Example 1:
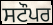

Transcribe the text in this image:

ਸਟੌਪਰ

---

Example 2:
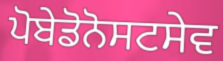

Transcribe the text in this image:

ਪੋਬੇਡੋਨੋਸਟਸੇਵ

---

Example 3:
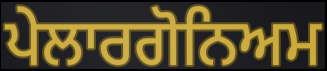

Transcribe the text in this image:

ਪੇਲਾਰਗੋਨਿਅਮ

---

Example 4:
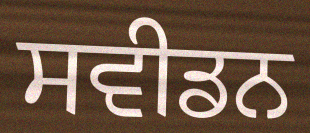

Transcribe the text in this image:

ਸਵੀਡਨ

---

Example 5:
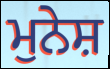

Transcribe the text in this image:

ਮੁਨੇਸ਼